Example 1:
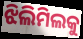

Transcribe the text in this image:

ଝିଲିମିଲକୁ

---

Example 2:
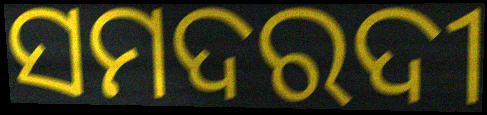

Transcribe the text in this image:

ସମଦରଦୀ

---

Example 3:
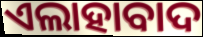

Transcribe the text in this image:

ଏଲାହାବାଦ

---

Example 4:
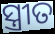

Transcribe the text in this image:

ସ୍ତ୍ରୀତ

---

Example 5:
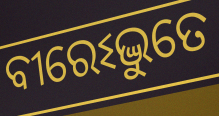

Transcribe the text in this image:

ବୀରେଽଦ୍ଭୁତେ